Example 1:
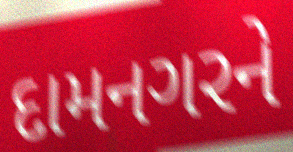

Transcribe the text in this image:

દામનગરને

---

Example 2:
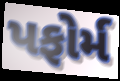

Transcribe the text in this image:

પફોર્મ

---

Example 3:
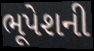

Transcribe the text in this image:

ભૂપેશની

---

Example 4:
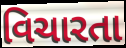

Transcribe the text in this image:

વિચારતા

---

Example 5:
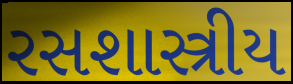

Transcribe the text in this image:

રસશાસ્ત્રીય